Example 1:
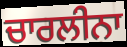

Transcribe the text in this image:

ਚਾਰਲੀਨਾ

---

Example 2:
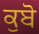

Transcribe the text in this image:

ਕੁਬੋ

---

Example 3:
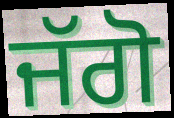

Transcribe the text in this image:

ਜੱਗੋ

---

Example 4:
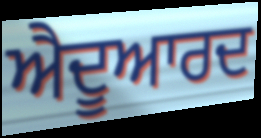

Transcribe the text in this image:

ਐਦੂਆਰਦ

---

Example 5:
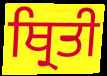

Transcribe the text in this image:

ਥ੍ਰਿਤੀ